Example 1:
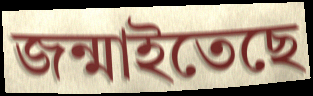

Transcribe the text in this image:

জন্মাইতেছে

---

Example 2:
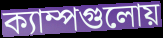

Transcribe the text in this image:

ক্যাম্পগুলোয়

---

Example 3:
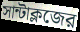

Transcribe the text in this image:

সান্টাক্লজের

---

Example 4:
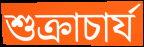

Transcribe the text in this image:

শুক্রাচার্য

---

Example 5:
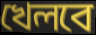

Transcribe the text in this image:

খেলবে